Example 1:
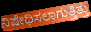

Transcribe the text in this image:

ನಿಷೇಧಿಸಲಾಗುತ್ತಿತ್ತು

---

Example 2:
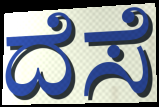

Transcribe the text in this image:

ದೆಸೆ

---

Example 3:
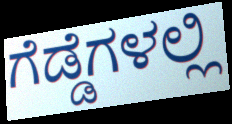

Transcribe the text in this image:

ಗೆಡ್ಡೆಗಳಲ್ಲಿ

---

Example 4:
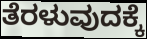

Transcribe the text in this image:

ತೆರಳುವುದಕ್ಕೆ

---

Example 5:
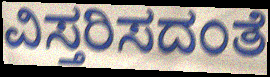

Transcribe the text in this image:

ವಿಸ್ತರಿಸದಂತೆ